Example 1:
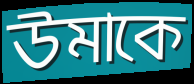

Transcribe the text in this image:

উমাকে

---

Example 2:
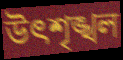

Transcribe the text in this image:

উৎশৃঙ্খল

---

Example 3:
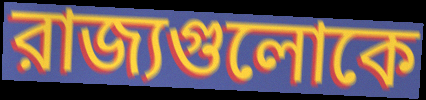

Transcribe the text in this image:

রাজ্যগুলোকে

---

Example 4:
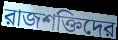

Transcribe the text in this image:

রাজশক্তিদের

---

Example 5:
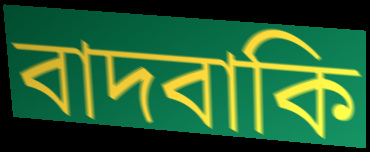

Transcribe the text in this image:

বাদবাকি